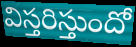
విస్తరిస్తుందో